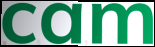
cam